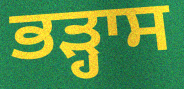
ਭੜ੍ਹਾਸ